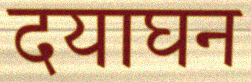
दयाघन